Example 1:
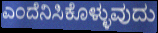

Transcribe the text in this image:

ಎಂದೆನಿಸಿಕೊಳ್ಳುವುದು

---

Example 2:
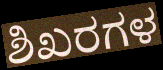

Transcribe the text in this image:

ಶಿಖರಗಳ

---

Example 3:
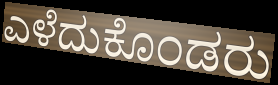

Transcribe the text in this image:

ಎಳೆದುಕೊಂಡರು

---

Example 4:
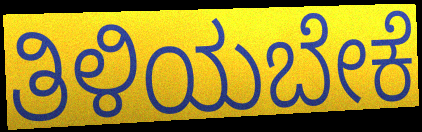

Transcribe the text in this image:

ತಿಳಿಯಬೇಕೆ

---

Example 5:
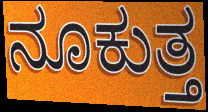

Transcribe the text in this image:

ನೂಕುತ್ತ